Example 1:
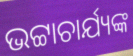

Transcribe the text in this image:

ଭଟ୍ଟାଚାର୍ଯ୍ୟଙ୍କ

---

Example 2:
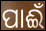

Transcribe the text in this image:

ପାଈଁ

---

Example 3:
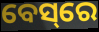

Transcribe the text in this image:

ବେସ୍‌ରେ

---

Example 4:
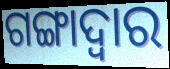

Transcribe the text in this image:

ଗଙ୍ଗାଦ୍ୱାର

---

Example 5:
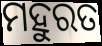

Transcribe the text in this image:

ମହୁରତ